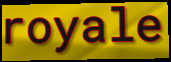
royale